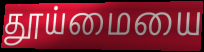
தூய்மையை